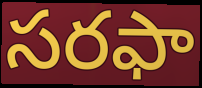
సరఫా